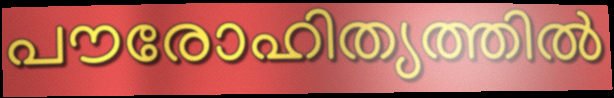
പൗരോഹിത്യത്തിൽ